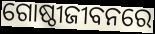
ଗୋଷ୍ଠୀଜୀବନରେ